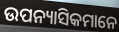
ଉପନ୍ୟାସିକମାନେ